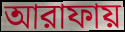
আরাফায়